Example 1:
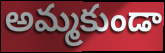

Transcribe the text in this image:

అమ్మకుండా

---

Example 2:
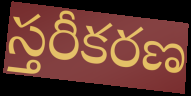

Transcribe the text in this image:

స్తరీకరణ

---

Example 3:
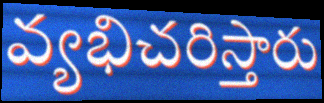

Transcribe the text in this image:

వ్యభిచరిస్తారు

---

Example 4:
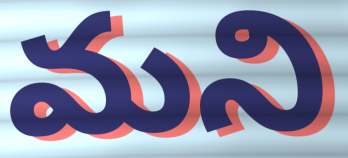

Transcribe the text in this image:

మని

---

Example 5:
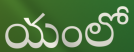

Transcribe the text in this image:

యంలో